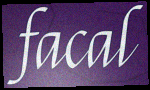
facal